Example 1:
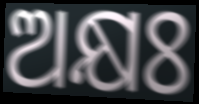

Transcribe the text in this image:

ଅକ୍ଷଃ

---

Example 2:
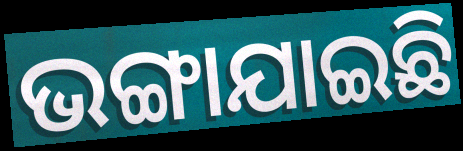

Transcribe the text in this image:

ଭଙ୍ଗାଯାଇଛି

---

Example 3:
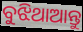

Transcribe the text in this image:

ବୁଝିଥାଆନ୍ତୁ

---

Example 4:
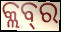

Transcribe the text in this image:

କ୍ଲବ୍‌ର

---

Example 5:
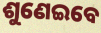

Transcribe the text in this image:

ଶୁଣେଇବେ